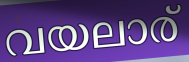
വയലാര്